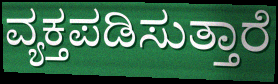
ವ್ಯಕ್ತಪಡಿಸುತ್ತಾರೆ